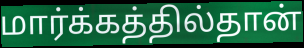
மார்க்கத்தில்தான்